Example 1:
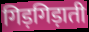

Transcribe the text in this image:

गिड़गिड़ाती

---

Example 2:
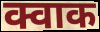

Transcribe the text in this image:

क्वाक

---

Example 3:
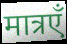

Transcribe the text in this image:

मात्रएँ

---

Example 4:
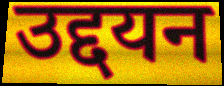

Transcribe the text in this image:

उद्दयन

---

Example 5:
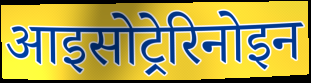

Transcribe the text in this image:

आइसोट्रेरिनोइन